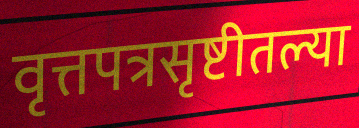
वृत्तपत्रसृष्टीतल्या